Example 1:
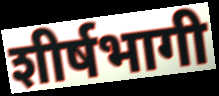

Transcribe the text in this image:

शीर्षभागी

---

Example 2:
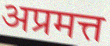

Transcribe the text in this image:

अप्रमत्त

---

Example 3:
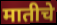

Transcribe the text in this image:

मातीचे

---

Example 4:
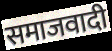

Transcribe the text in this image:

समाजवादी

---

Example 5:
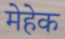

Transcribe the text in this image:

मेहेक